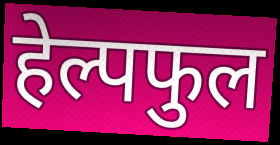
हेल्पफुल